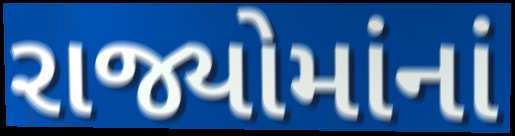
રાજ્યોમાંનાં